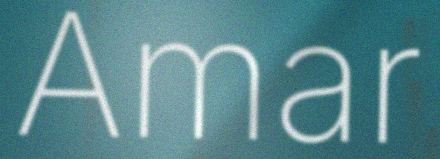
Amar